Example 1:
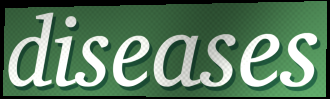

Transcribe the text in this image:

diseases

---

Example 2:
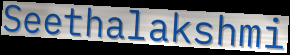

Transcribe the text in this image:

Seethalakshmi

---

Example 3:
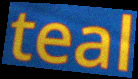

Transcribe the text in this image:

teal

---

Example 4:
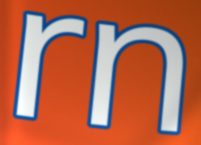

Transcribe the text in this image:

rn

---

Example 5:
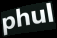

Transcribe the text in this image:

phul